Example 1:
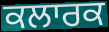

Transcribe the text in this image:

ਕਲਾਰਕ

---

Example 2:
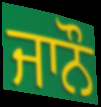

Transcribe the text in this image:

ਜਾਨੌ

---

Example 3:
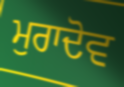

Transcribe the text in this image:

ਮੁਰਾਦੋਵ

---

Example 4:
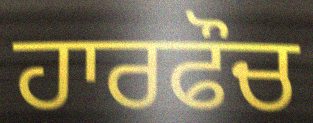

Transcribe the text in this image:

ਹਾਰਫੌਚ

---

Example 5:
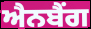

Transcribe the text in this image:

ਐਨਬੈਂਗ